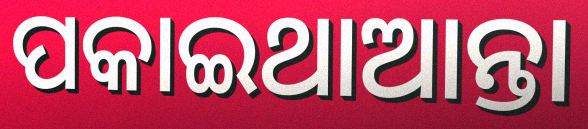
ପକାଇଥାଆନ୍ତା